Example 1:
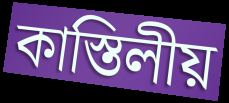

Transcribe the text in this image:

কাস্তিলীয়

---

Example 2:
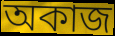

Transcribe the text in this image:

অকাজ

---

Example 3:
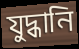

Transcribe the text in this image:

যুদ্ধানি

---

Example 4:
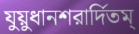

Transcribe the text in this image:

যুয়ুধানশরার্দিতম্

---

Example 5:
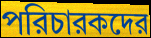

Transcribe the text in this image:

পরিচারকদের